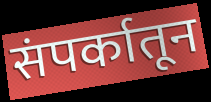
संपर्कातून